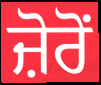
ਜ਼ੋਰੋਂ